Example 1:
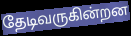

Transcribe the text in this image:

தேடிவருகின்றன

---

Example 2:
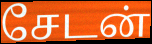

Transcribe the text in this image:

சேடன்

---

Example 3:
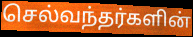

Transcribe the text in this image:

செல்வந்தர்களின்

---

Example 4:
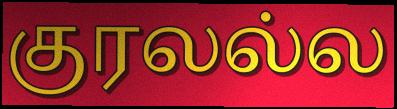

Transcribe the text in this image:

குரலல்ல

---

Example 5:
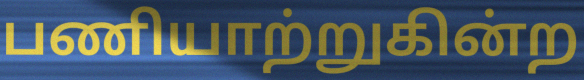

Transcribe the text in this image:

பணியாற்றுகின்ற